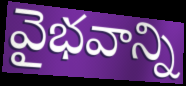
వైభవాన్ని